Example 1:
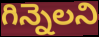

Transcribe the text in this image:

గిన్నెలని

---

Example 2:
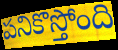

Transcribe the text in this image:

పనికొస్తోంది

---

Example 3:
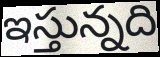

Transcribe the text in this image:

ఇస్తున్నది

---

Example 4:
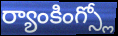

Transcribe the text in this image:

ర్యాంకింగ్స్లో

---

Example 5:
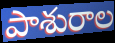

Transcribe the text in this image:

పాశురాల